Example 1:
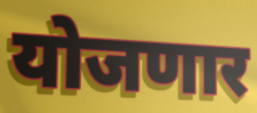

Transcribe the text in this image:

योजणार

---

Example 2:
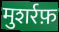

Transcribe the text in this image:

मुशर्रफ़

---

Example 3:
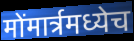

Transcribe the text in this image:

मोंमार्त्रमध्येच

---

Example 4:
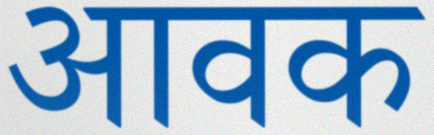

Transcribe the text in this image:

आवक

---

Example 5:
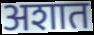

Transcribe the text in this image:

अशात